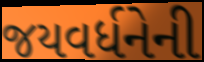
જયવર્ધનેની